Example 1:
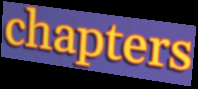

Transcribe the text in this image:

chapters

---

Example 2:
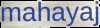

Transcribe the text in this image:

mahayaj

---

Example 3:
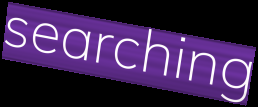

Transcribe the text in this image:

searching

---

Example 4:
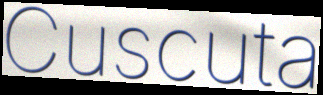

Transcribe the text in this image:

Cuscuta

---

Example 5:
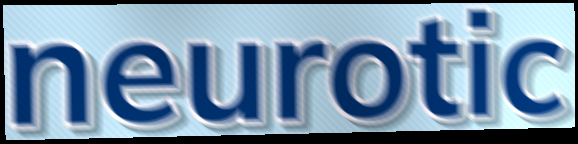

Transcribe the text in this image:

neurotic